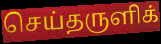
செய்தருளிக்